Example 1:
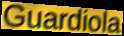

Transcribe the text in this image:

Guardiola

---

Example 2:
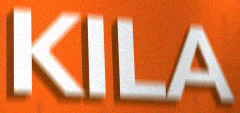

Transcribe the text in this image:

KILA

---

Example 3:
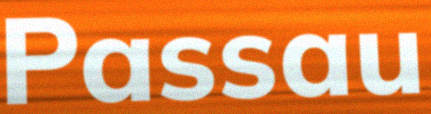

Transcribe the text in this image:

Passau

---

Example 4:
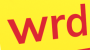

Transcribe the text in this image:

wrd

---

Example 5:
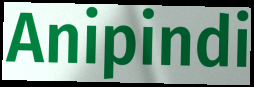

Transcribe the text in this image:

Anipindi